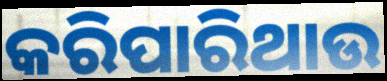
କରିପାରିଥାଉ